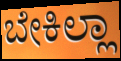
ಬೇಕಿಲ್ಲಾ